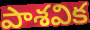
పాశవిక